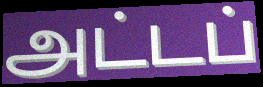
அட்டப்